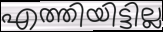
എത്തിയിട്ടില്ല